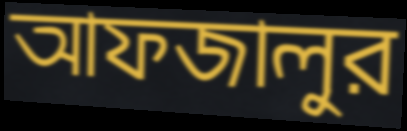
আফজালুর